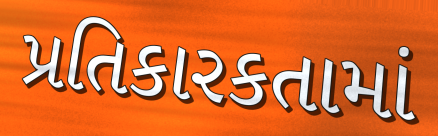
પ્રતિકારકતામાં